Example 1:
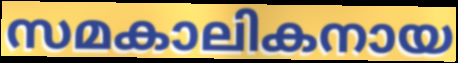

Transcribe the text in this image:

സമകാലികനായ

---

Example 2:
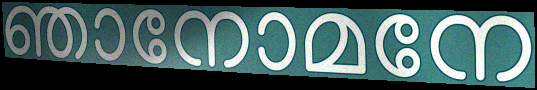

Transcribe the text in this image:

ഞാനോമനേ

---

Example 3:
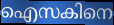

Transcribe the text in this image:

ഐസകിനെ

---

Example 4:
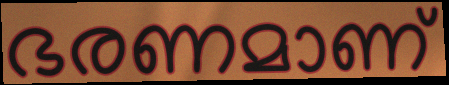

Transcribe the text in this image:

ഭരണമാണ്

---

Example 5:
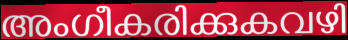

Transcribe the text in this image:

അംഗീകരിക്കുകവഴി